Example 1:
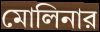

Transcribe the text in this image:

মোলিনার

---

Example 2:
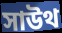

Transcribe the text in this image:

সাউথ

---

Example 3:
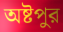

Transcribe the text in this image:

অষ্টপুর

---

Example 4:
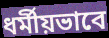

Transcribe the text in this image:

ধর্মীয়ভাবে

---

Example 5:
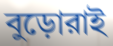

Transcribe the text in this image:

বুড়োরাই